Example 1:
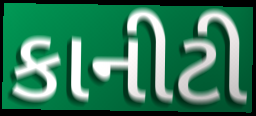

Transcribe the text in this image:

કાનીટી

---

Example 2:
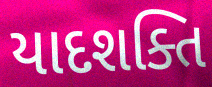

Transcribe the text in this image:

યાદશક્તિ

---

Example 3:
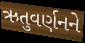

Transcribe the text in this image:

ઋતુવર્ણનને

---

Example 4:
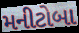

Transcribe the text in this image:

મનીટોબા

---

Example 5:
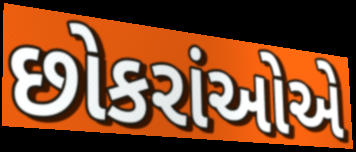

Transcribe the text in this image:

છોકરાંઓએ